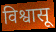
विश्वासू